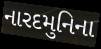
નારદમુનિના